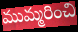
ముమ్మరించి